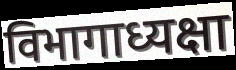
विभागाध्यक्षा